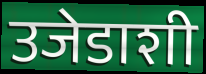
उजेडाशी